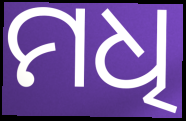
ମଧି